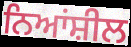
ਨਿਆਂਸ਼ੀਲ